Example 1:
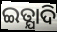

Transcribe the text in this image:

ଇତ୍ଯାଦି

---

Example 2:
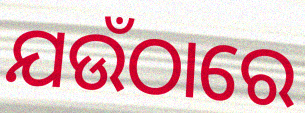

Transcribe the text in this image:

ଯଉଁଠାରେ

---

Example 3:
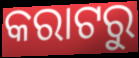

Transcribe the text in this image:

କରାଟରୁ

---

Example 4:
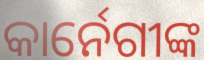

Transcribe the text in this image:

କାର୍ନେଗୀଙ୍କ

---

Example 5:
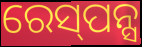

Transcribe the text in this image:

ରେସ୍‌ପନ୍ସ